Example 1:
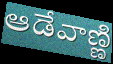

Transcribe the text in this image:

ఆడేవాణ్ణి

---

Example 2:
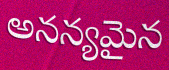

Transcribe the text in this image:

అనన్యమైన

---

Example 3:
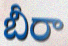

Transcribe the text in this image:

బీరా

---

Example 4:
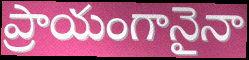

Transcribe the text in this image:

ప్రాయంగానైనా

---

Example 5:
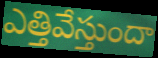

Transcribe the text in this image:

ఎత్తివేస్తుందా